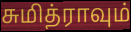
சுமித்ராவும்